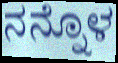
ನನ್ನೊಳ